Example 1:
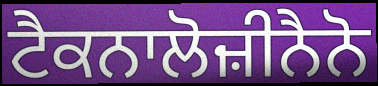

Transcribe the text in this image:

ਟੈਕਨਾਲੋਜ਼ੀਨੈਨੋ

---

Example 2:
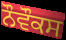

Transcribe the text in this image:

ਨੌਵੌਕਸ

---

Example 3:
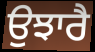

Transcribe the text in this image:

ਉਝਾਰੈ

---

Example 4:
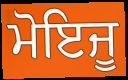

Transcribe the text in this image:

ਮੋਇਜੂ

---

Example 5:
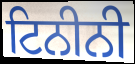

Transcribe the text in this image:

ਟਿਨੀਨੀ